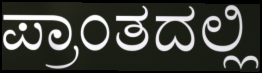
ಪ್ರಾಂತದಲ್ಲಿ